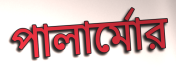
পালার্মোর